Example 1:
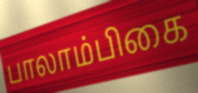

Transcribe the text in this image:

பாலாம்பிகை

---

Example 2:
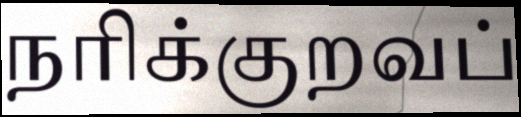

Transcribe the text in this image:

நரிக்குறவப்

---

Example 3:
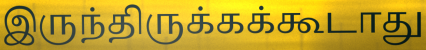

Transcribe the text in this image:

இருந்திருக்கக்கூடாது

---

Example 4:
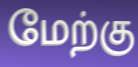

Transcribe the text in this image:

மேற்கு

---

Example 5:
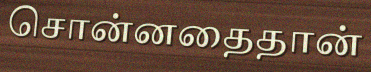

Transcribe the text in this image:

சொன்னதைதான்